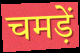
चमड़ें